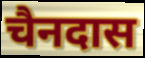
चैनदास